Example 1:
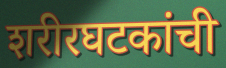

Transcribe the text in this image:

शरीरघटकांची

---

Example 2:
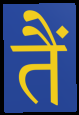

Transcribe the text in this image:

तैं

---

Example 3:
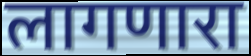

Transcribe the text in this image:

लागणारा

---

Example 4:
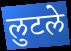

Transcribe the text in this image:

लुटले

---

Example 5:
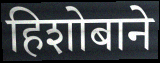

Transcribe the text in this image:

हिशोबाने